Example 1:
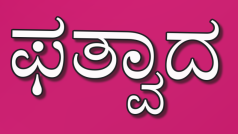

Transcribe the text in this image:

ಫತ್ವಾದ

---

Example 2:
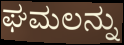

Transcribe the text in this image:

ಘಮಲನ್ನು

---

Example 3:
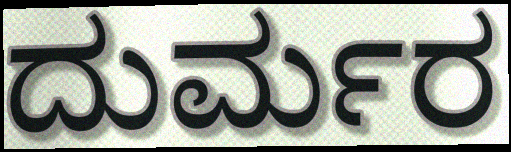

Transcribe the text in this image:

ದುರ್ಮರ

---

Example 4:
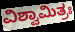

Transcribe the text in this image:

ವಿಶ್ವಾಮಿತ್ರಃ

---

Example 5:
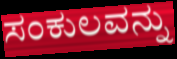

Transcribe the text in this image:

ಸಂಕುಲವನ್ನು